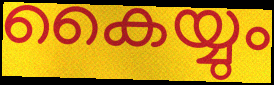
കൈയ്യും